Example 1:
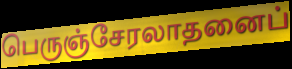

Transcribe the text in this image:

பெருஞ்சேரலாதனைப்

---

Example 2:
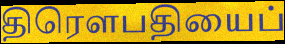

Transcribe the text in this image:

திரெளபதியைப்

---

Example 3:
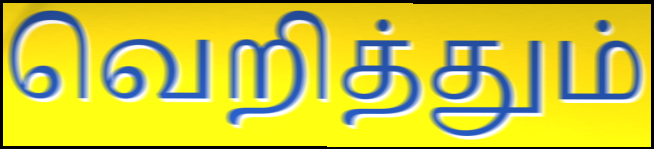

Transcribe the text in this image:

வெறித்தும்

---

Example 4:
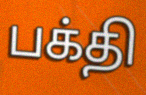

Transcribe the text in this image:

பக்தி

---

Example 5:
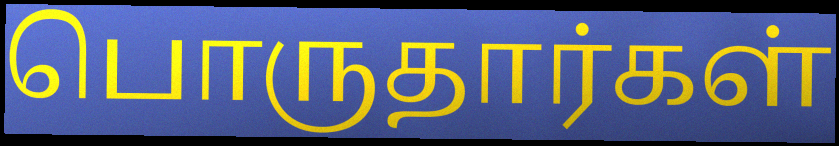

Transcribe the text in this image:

பொருதார்கள்